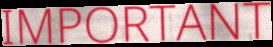
IMPORTANT